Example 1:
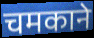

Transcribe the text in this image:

चमकाने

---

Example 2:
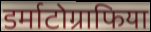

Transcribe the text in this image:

डर्माटोग्राफिया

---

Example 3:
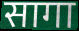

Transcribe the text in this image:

सागा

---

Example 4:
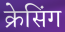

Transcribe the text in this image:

क्रेसिंग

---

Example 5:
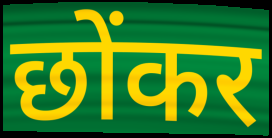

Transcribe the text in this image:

छोंकर